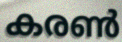
കരൺ